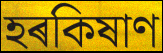
হৰকিষাণ